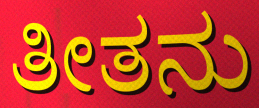
ತೀತನು